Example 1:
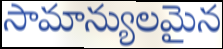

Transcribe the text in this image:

సామాన్యులమైన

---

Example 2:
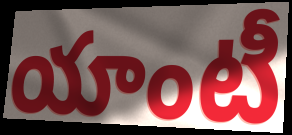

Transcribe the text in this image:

యాంటీ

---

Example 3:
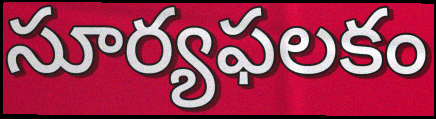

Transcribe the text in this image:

సూర్యఫలకం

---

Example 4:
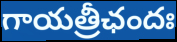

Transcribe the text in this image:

గాయత్రీఛందః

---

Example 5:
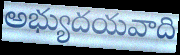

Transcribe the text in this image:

అభ్యుదయవాది